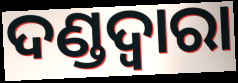
ଦଣ୍ଡଦ୍ବାରା